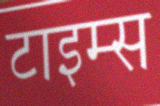
टाइम्स